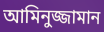
আমিনুজ্জামান